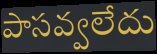
పాసవ్వలేదు